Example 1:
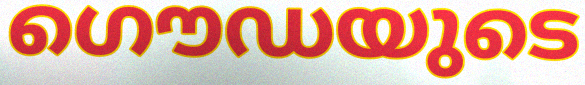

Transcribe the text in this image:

ഗൌഡയുടെ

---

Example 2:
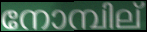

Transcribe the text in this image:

നോമ്പില്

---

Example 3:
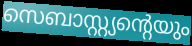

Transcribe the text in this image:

സെബാസ്റ്റ്യന്റെയും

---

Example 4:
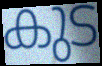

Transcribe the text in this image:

കുട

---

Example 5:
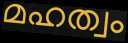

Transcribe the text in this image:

മഹത്വം